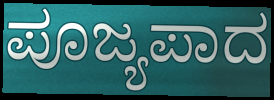
ಪೂಜ್ಯಪಾದ